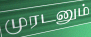
முரடனும்